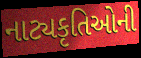
નાટ્યકૃતિઓની